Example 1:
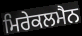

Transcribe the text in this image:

ਮਿਰੇਕਲਮੈਨ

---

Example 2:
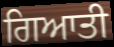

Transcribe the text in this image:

ਗਿਆਤੀ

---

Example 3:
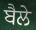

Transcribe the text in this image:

ਬੈਲੇ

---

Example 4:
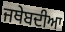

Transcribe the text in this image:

ਜਥੇਬਦੀਆ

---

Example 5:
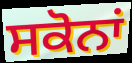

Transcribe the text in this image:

ਸਕੋਨਾਂ